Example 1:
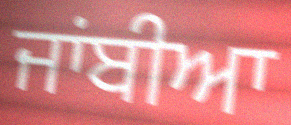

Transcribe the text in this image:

ਜਾਂਬੀਆ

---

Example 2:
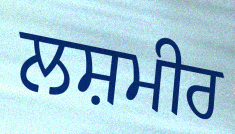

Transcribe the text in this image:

ਲਸ਼ਮੀਰ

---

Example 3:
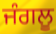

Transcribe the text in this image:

ਜੰਗਲੂ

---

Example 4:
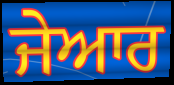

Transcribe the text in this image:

ਜੇਆਰ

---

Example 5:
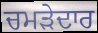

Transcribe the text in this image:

ਚਮੜੇਦਾਰ